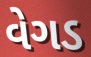
વેગડ